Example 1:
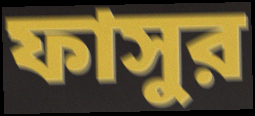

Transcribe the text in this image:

ফাসুর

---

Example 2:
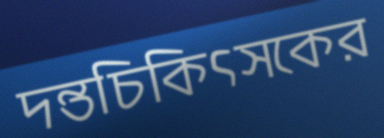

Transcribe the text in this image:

দন্তচিকিৎসকের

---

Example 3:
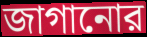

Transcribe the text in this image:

জাগানোর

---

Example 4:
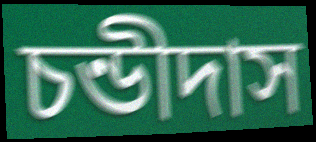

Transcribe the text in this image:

চন্ডীদাস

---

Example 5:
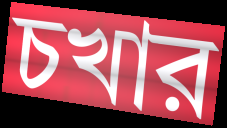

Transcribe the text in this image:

চখার